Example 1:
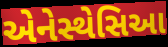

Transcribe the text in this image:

એનેસ્થેસિઆ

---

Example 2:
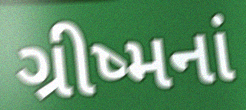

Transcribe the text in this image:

ગ્રીષ્મનાં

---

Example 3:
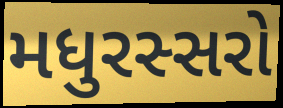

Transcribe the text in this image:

મધુરસ્સરો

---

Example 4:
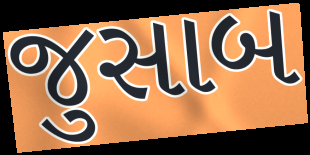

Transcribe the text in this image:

જુસાબ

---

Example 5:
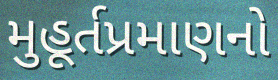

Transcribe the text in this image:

મુહૂર્તપ્રમાણનો